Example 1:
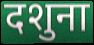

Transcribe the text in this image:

दशुना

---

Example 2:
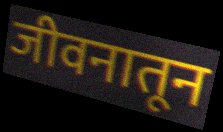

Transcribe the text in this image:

जीवनातून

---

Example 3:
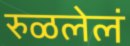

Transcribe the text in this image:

रुळलेलं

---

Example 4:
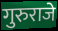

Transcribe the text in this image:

गुरुराजे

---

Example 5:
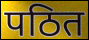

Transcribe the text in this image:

पठित